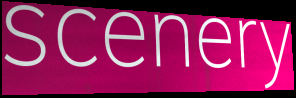
scenery